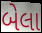
બેલા